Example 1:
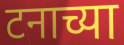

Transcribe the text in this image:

टनाच्या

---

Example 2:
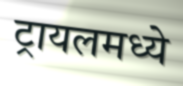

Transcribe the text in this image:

ट्रायलमध्ये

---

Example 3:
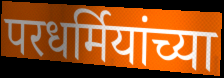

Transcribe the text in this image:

परधर्मियांच्या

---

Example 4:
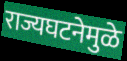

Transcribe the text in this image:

राज्यघटनेमुळे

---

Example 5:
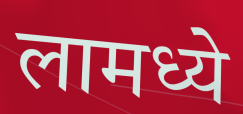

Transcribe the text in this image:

लामध्ये